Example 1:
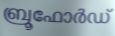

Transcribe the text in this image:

ബ്രൂഫോർഡ്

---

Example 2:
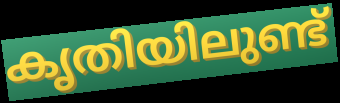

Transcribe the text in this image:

കൃതിയിലുണ്ട്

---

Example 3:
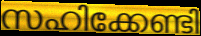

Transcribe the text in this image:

സഹിക്കേണ്ടി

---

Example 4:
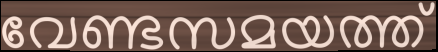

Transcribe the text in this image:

വേണ്ടസമയത്ത്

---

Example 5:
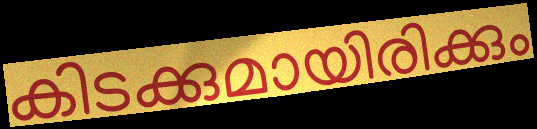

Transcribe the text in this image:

കിടക്കുമായിരിക്കും